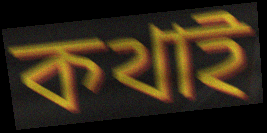
কথাই